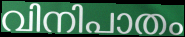
വിനിപാതം